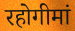
रहोगीमां